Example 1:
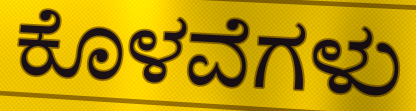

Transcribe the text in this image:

ಕೊಳವೆಗಳು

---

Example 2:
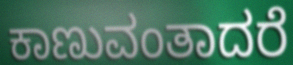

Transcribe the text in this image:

ಕಾಣುವಂತಾದರೆ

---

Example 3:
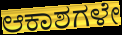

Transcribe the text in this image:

ಆಕಾಶಗಳೇ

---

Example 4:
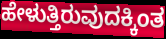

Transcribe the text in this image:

ಹೇಳುತ್ತಿರುವುದಕ್ಕಿಂತ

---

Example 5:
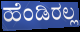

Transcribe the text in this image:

ಹೆಂಡಿರಲ್ಲ